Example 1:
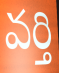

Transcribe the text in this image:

వర్తి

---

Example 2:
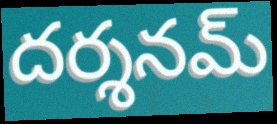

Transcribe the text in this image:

దర్శనమ్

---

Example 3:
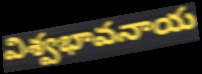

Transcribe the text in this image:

విశ్వభావనాయ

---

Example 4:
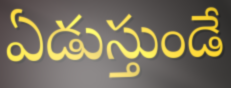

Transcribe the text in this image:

ఏడుస్తుండే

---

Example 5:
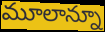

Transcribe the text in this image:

మూలాన్నూ